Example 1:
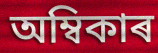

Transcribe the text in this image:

অম্বিকাৰ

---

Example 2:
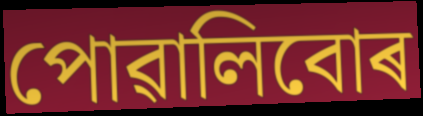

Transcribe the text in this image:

পোৱালিবোৰ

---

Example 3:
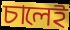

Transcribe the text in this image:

চালেই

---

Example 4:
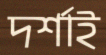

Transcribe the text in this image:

দৰ্শাই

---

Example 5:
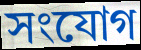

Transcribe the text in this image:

সংযোগ